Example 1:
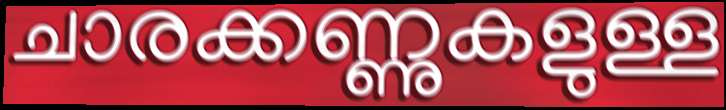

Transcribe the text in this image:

ചാരക്കണ്ണുകളുള്ള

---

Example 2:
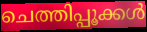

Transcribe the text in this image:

ചെത്തിപ്പൂക്കൾ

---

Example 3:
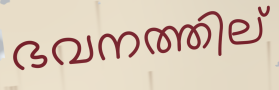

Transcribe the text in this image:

ഭവനത്തില്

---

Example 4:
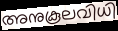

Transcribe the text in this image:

അനുകൂലവിധി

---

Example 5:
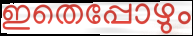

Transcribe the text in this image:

ഇതെപ്പോഴും